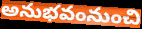
అనుభవంనుంచి